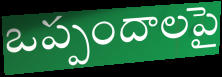
ఒప్పందాలపై